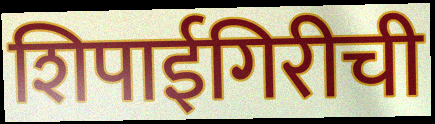
शिपाईगिरीची